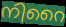
നിറൈ